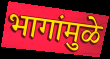
भागांमुळे